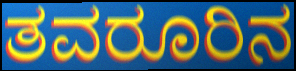
ತವರೂರಿನ